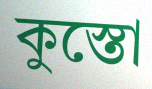
কুস্তো